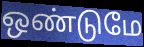
ஒண்டுமே